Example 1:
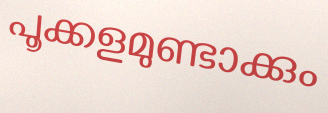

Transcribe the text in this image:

പൂക്കളമുണ്ടാക്കും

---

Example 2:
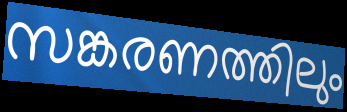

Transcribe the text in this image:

സങ്കരണത്തിലും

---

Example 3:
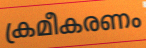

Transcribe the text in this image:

ക്രമീകരണം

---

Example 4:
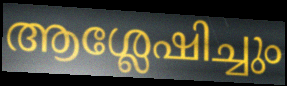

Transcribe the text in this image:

ആശ്ലേഷിച്ചും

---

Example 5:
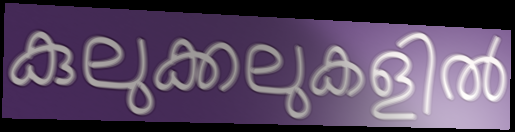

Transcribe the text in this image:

കുലുക്കലുകളിൽ